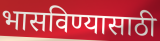
भासविण्यासाठी